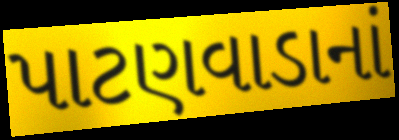
પાટણવાડાનાં